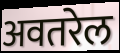
अवतरेल